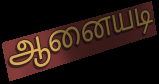
ஆனையடி